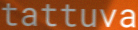
tattuva